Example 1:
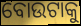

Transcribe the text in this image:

ବୋଉଟାକୁ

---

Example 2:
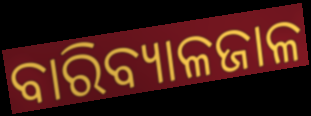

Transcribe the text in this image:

ବାରିବ୍ୟାଳଜାଳ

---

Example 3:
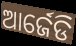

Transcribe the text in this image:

ଆର୍ଜେଡି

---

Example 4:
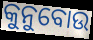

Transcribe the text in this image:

କୁନୁବୋଉ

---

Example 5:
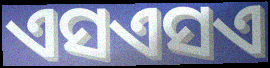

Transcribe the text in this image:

ଏସଏସଏ